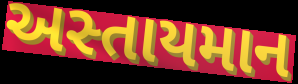
અસ્તાયમાન